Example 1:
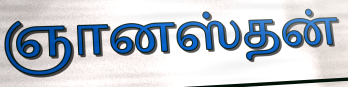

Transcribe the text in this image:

ஞானஸ்தன்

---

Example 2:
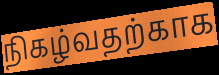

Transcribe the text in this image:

நிகழ்வதற்காக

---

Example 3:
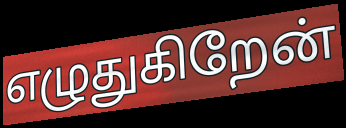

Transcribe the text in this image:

எழுதுகிறேன்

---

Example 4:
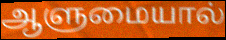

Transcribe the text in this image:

ஆளுமையால்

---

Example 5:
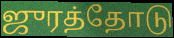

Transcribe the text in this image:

ஜுரத்தோடு